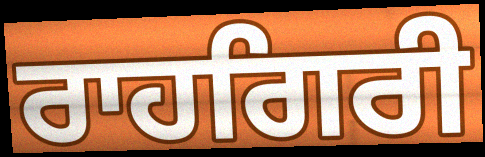
ਰਾਹਗਿਰੀ